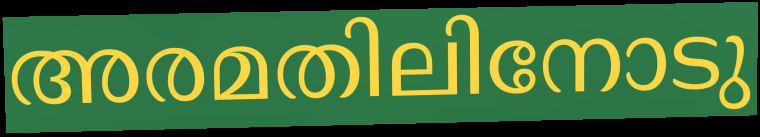
അരമതിലിനോടു